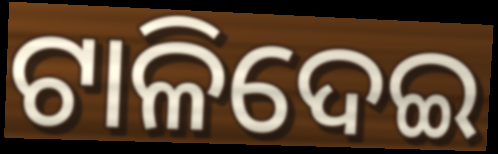
ଟାଳିଦେଇ